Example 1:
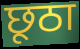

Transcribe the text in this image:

छूठा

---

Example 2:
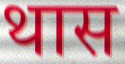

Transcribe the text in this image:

थास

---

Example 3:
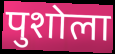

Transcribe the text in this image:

पुशोला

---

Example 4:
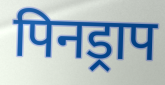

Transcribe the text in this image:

पिनड्राप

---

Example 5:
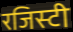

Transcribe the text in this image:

रजिस्टी